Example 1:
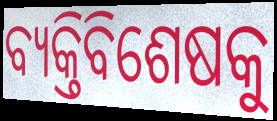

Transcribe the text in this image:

ବ୍ୟକ୍ତିବିଶେଷକୁ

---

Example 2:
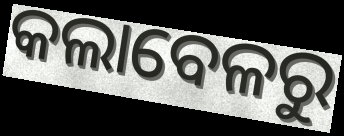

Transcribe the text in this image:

କଲାବେଳରୁ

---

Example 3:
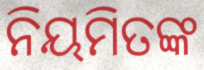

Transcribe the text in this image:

ନିୟମିତଙ୍କ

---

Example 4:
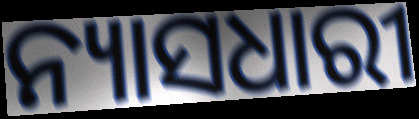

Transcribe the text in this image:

ନ୍ୟାସଧାରୀ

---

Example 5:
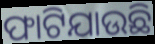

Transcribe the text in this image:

ଫାଟିଯାଉଛି